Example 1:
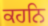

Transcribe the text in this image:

ਕਹਨਿ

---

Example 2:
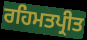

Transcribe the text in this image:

ਰਹਿਮਤਪ੍ਰੀਤ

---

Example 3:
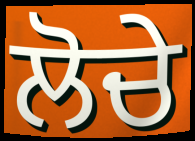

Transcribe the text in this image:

ਲੋਚੇ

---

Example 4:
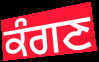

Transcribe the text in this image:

ਕੰਗਣ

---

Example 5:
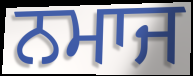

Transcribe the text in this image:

ਨਮਾਜ